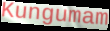
Kungumam